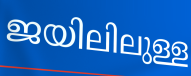
ജയിലിലുള്ള